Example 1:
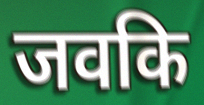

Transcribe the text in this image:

जवकि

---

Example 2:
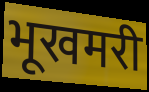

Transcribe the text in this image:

भूखमरी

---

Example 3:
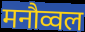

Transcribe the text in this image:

मनौव्वल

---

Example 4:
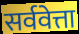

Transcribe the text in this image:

सर्ववेत्ता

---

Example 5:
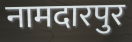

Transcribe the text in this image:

नामदारपुर